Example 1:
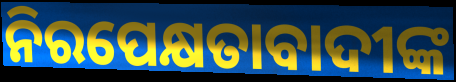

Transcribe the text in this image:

ନିରପେକ୍ଷତାବାଦୀଙ୍କ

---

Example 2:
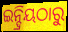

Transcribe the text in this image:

ଇନ୍ଦ୍ରିୟଠାରୁ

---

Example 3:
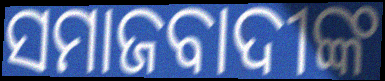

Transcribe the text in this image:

ସମାଜବାଦୀଙ୍କ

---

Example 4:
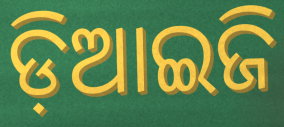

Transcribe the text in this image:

ଡ଼ିଆଇଜି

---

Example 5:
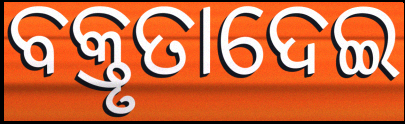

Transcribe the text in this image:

ବକ୍ତୃତାଦେଇ